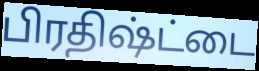
பிரதிஷ்ட்டை